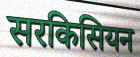
सरकिसियन